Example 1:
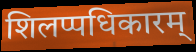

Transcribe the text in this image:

शिलप्पधिकारम्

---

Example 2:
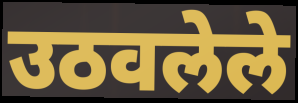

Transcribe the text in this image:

उठवलेले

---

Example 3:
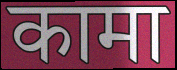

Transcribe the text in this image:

कामा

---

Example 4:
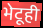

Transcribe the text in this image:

भेटूही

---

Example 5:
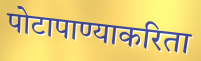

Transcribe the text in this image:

पोटापाण्याकरिता